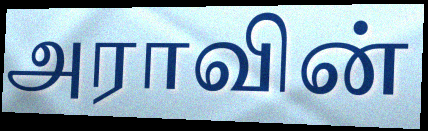
அராவின்